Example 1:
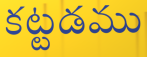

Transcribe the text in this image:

కట్టడము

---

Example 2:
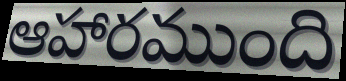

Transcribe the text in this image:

ఆహారముంది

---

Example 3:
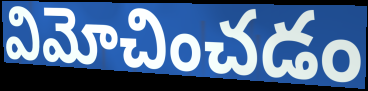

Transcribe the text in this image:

విమోచించడం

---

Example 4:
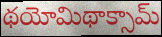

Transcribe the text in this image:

థయోమిథాక్సామ్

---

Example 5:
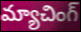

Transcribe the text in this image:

మ్యాచింగ్